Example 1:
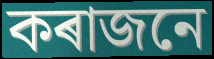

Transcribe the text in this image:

কৰাজনে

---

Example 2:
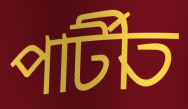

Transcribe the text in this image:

পাৰ্টীত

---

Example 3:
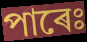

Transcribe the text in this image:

পাৰেঃ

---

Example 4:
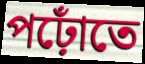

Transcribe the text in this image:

পঢ়োঁতে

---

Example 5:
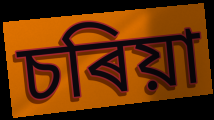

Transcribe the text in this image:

চৰিয়া